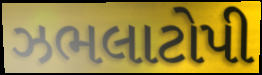
ઝભલાટોપી